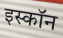
इस्‍कॉन